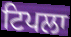
ਟਿਪਲਾ